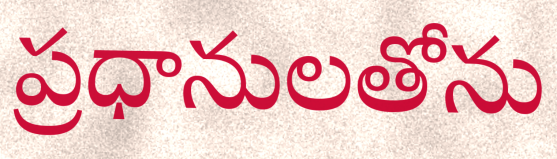
ప్రధానులతోను